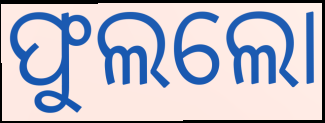
ଫୁଲଲୋ